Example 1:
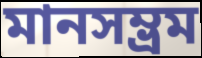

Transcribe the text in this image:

মানসম্ভ্রম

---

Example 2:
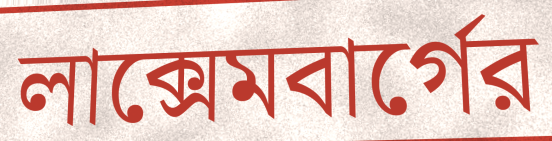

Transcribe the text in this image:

লাক্সেমবার্গের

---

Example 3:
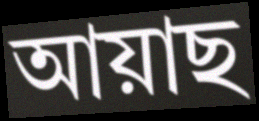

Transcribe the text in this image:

আয়াছ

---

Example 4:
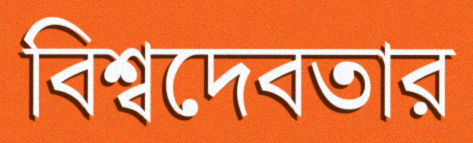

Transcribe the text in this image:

বিশ্বদেবতার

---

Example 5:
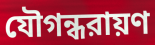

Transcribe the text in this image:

যৌগন্ধরায়ণ